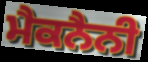
ਮੈਕਨੈਨੀ